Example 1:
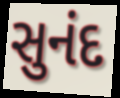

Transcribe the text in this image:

સુનંદ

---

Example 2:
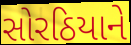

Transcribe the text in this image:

સોરઠિયાને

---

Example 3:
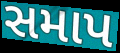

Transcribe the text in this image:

સમાપ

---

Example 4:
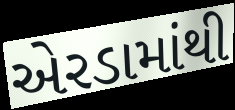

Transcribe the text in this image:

એરડામાંથી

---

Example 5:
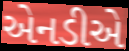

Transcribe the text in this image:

એનડીએ